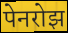
पेनरोझ